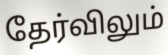
தேர்விலும்